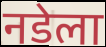
नडेला